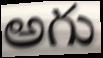
అగు